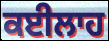
ਕਈਲਾਹ